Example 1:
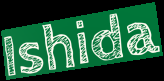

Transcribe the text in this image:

Ishida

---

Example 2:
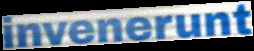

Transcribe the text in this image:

invenerunt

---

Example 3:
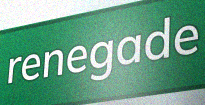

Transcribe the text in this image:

renegade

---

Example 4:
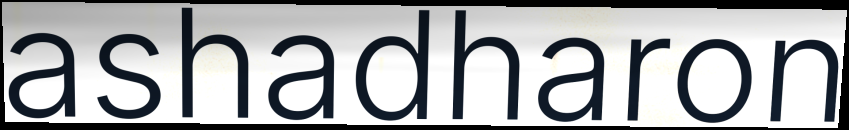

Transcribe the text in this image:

ashadharon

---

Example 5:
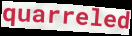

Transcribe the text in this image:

quarreled